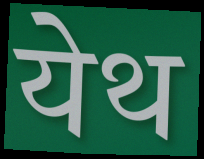
येथ